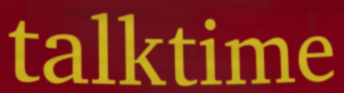
talktime